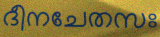
ദീനചേതസഃ